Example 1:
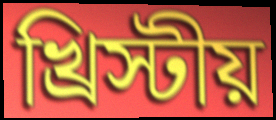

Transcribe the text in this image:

খ্রিস্টীয়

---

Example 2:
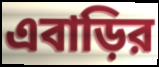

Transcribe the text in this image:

এবাড়ির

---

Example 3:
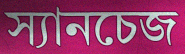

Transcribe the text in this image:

স্যানচেজ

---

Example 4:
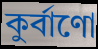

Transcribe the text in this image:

কুর্বাণো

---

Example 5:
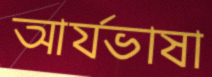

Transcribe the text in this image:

আর্যভাষা